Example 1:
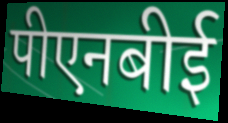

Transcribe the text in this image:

पीएनबीई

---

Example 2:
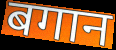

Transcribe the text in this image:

बगान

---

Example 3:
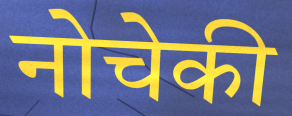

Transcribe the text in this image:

नोचेकी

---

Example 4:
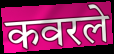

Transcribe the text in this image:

कवरले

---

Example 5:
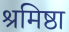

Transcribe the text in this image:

श्रमिष्ठा